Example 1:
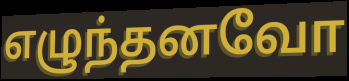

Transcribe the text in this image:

எழுந்தனவோ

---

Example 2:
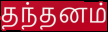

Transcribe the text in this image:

தந்தனம்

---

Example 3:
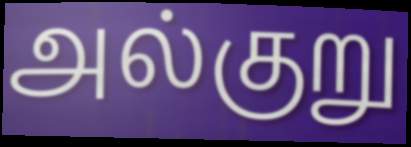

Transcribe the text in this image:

அல்குறு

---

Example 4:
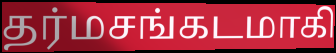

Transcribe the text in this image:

தர்மசங்கடமாகி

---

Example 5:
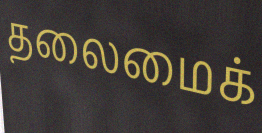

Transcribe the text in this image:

தலைமைக்